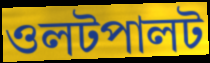
ওলটপালট